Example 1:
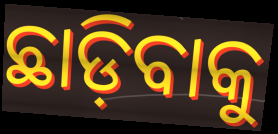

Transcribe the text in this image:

ଛାଡ଼ିବାକୁ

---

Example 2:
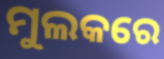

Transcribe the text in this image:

ମୁଲକରେ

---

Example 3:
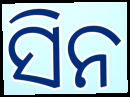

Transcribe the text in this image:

ସିନ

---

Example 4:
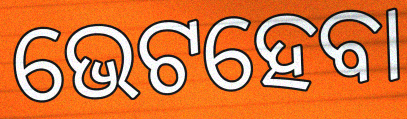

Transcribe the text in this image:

ଭେଟହେବା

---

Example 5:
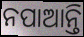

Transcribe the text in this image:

ନପାଆନ୍ତି